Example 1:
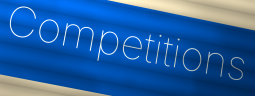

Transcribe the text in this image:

Competitions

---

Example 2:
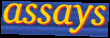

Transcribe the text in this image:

assays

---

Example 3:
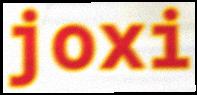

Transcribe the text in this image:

joxi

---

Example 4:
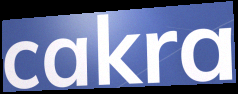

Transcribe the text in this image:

cakra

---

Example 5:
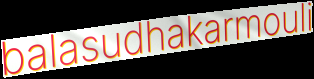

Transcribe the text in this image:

balasudhakarmouli